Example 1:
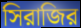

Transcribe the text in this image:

সিরাজির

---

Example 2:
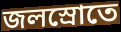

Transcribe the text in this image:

জলস্রোতে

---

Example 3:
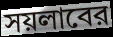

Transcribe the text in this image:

সয়লাবের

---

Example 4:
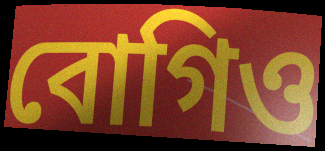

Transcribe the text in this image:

বোগিও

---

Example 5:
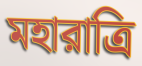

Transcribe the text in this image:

মহারাত্রি